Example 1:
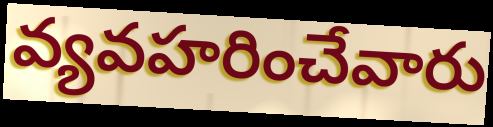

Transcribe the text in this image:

వ్యవహరించేవారు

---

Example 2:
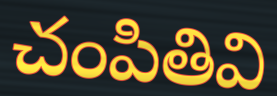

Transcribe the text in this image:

చంపితివి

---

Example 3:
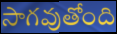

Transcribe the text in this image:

సాగవుతోంది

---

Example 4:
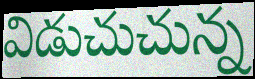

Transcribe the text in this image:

విడుచుచున్న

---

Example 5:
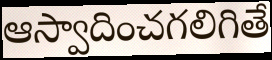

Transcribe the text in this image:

ఆస్వాదించగలిగితే